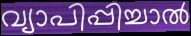
വ്യാപിപ്പിച്ചാൽ